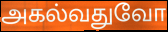
அகல்வதுவோ